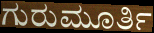
ಗುರುಮೂರ್ತಿ